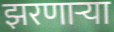
झरणाऱ्या